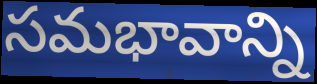
సమభావాన్ని